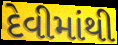
દેવીમાંથી